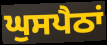
ਘੁਸਪੈਠਾਂ